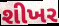
શીખર